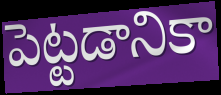
పెట్టడానికా